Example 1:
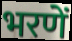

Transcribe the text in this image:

भरणें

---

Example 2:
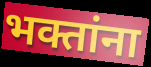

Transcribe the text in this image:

भक्तांना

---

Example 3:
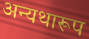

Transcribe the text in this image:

अन्यथारूप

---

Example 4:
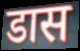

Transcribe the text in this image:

डास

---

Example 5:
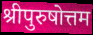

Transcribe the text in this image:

श्रीपुरुषोत्तम